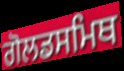
ਗੋਲਡਸਮਿਥ